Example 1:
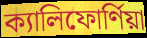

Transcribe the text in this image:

ক্যালিফোর্ণিয়া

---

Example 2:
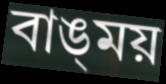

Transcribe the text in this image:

বাঙ্‌ময়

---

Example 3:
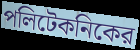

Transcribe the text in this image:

পলিটেকনিকের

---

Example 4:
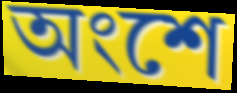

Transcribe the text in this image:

অংশে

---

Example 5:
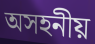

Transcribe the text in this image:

অসহনীয়